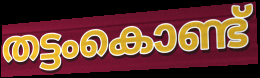
തട്ടംകൊണ്ട്